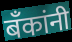
बॅंकांनी